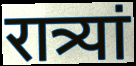
रात्र्यां